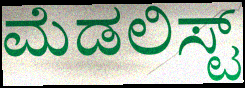
ಮೆಡಲಿಸ್ಟ್